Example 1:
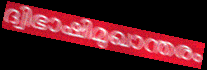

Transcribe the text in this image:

ദ്വിഭാഷിമുഖാന്തരം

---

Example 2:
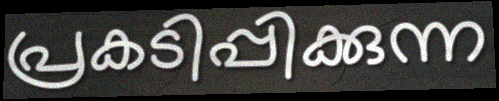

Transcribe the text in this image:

പ്രകടിപ്പിക്കുന്ന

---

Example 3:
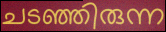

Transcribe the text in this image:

ചടഞ്ഞിരുന്ന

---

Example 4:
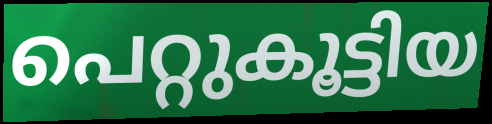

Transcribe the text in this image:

പെറ്റുകൂട്ടിയ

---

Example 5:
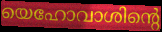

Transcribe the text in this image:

യെഹോവാശിന്റെ